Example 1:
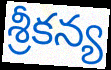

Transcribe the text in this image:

శ్రీకన్య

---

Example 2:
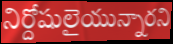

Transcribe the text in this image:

నిర్దోషులైయున్నారని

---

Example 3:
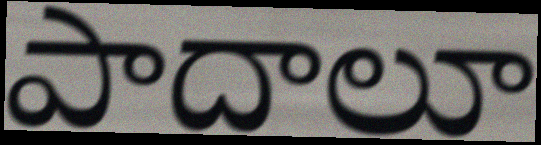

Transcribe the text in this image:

పాదాలూ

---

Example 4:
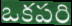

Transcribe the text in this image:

ఒకపరి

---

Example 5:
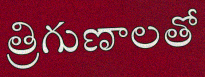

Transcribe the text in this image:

త్రిగుణాలతో